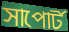
সাপোর্ট